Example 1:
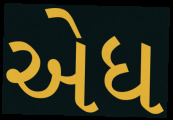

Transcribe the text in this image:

એધ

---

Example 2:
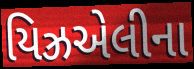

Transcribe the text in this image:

યિઝ્રએલીના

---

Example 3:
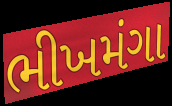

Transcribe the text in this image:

ભીખમંગા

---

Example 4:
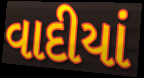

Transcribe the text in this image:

વાદીયાં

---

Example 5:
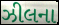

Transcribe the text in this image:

ઝીલના